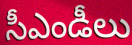
సీఎండీలు